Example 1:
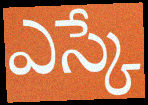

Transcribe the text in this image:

ఎస్కే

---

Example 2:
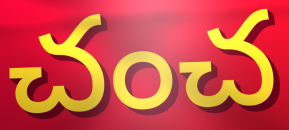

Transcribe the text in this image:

చంచ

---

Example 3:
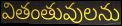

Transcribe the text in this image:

వితంతువులను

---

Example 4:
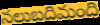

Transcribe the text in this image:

నలుబదిమంది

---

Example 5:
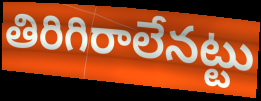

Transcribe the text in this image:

తిరిగిరాలేనట్టు